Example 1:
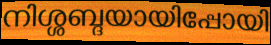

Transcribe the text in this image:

നിശ്ശബ്ദയായിപ്പോയി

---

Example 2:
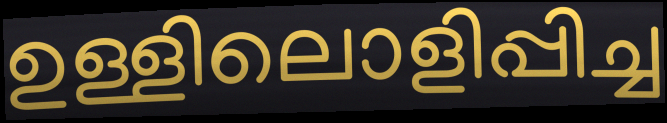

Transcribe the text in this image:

ഉള്ളിലൊളിപ്പിച്ച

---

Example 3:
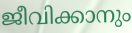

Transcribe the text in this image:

ജീവിക്കാനും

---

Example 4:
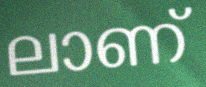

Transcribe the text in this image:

ലാണ്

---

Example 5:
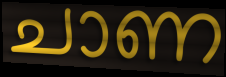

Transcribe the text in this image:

ചാണ